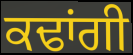
ਕਢਾਂਗੀ